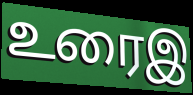
உரைஇ